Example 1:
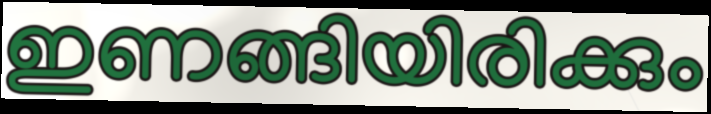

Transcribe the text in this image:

ഇണങ്ങിയിരിക്കും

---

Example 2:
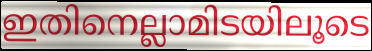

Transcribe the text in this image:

ഇതിനെല്ലാമിടയിലൂടെ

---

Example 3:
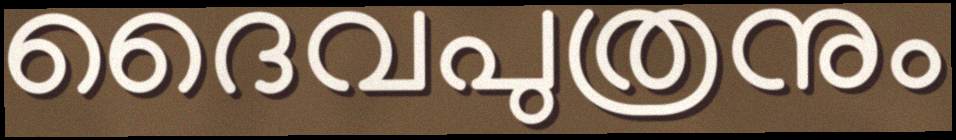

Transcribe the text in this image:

ദൈവപുത്രനും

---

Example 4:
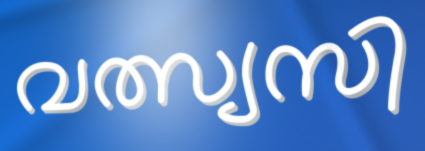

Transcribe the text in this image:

വത്സ്യസി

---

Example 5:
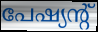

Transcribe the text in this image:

പേഷ്യന്റ്